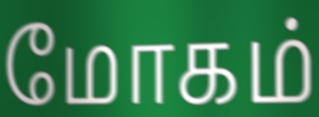
மோகம்